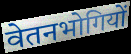
वेतनभोगियों